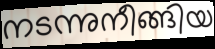
നടന്നുനീങ്ങിയ